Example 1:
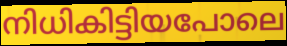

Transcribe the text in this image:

നിധികിട്ടിയപോലെ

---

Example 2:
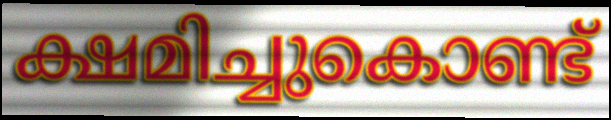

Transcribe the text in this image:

ക്ഷമിച്ചുകൊണ്ട്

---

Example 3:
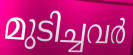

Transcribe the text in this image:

മുടിച്ചവർ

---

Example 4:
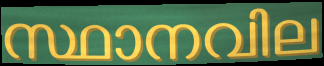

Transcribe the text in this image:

സ്ഥാനവില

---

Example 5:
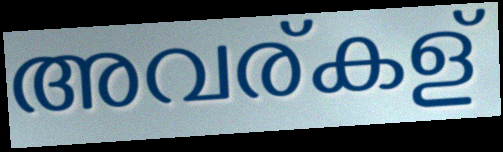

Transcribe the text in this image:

അവര്കള്